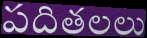
పదితలలు